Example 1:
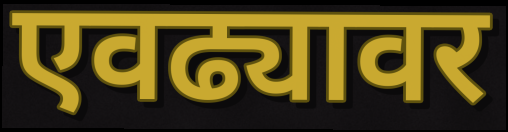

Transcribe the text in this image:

एवढ्यावर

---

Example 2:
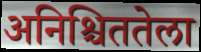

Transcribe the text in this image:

अनिश्चिततेला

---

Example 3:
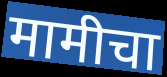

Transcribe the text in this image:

मामीचा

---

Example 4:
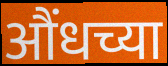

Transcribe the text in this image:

औंधच्या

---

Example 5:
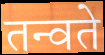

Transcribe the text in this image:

तन्वते